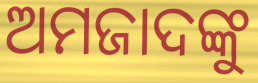
ଅମଜାଦଙ୍କୁ